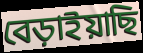
বেড়াইয়াছি